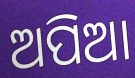
ଅପିଆ